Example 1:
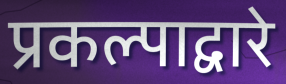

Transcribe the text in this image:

प्रकल्पाद्वारे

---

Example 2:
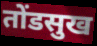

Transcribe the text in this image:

तोंडसुख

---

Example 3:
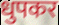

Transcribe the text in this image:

धुपकर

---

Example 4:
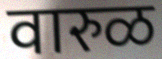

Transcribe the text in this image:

वारुळ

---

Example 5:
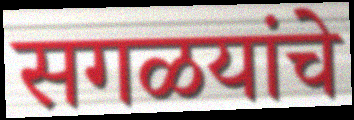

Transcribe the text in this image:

सगळयांचे